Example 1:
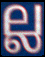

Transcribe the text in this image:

ല്ല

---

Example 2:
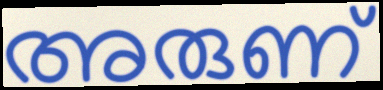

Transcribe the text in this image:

അരുണ്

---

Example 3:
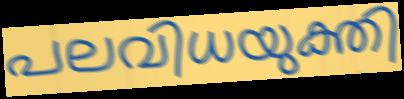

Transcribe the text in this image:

പലവിധയുക്തി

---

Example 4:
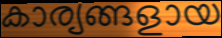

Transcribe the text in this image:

കാര്യങ്ങളായ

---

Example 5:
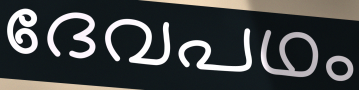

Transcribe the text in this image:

ദേവപഥം